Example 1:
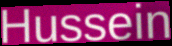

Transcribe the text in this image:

Hussein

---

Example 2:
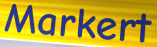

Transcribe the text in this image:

Markert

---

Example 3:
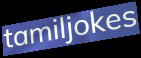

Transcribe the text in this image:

tamiljokes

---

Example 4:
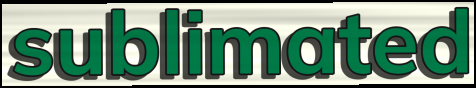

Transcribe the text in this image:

sublimated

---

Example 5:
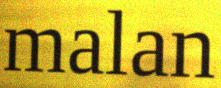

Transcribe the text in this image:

malan